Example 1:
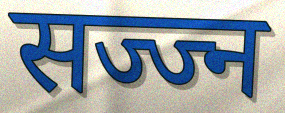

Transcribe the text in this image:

सज्ज्न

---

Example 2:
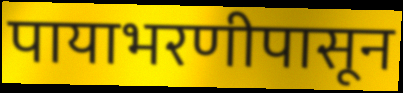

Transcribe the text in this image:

पायाभरणीपासून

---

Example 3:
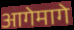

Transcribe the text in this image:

आगेमागे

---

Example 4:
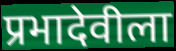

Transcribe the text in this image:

प्रभादेवीला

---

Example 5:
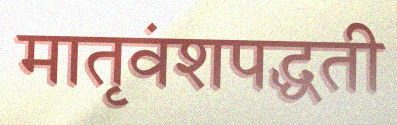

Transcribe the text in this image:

मातृवंशपद्धती